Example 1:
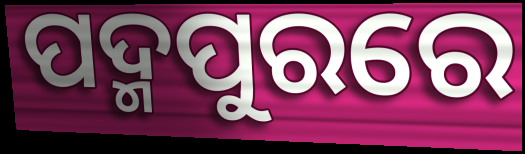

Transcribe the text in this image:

ପଦ୍ମପୁରରେ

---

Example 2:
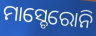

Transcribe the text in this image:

ମାସ୍ଚେରୋନି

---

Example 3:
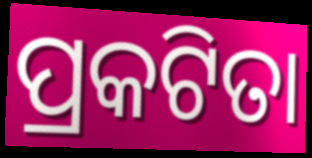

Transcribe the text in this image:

ପ୍ରକଟିତା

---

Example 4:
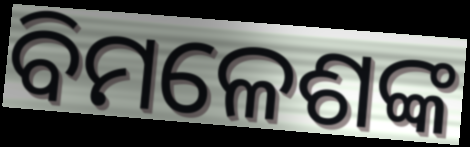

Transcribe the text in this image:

ବିମଳେଶଙ୍କ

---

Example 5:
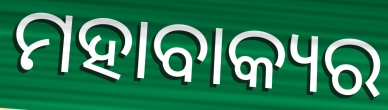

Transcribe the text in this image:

ମହାବାକ୍ୟର